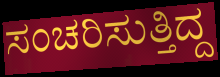
ಸಂಚರಿಸುತ್ತಿದ್ದ